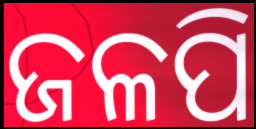
ଜଳପି